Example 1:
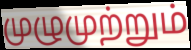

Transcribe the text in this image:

முழுமுற்றும்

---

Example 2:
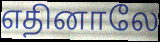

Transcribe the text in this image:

எதினாலே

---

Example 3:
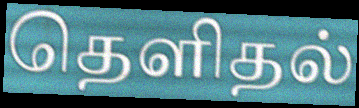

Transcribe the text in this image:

தெளிதல்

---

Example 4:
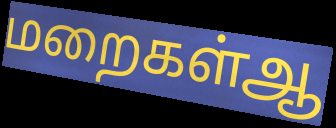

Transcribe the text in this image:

மறைகள்ஆ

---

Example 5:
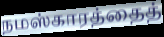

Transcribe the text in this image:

நமஸ்காரத்தைத்